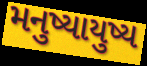
મનુષ્યાયુષ્ય